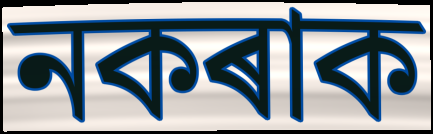
নকৰাক